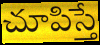
చూపిస్తే